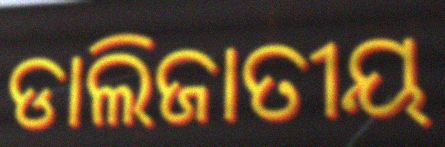
ଡାଲିଜାତୀୟ